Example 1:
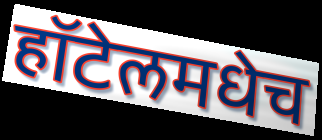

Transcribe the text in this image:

हॉटेलमधेच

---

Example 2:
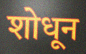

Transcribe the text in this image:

शोधून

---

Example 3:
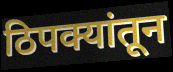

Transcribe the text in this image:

ठिपक्यांतून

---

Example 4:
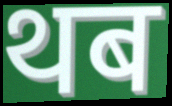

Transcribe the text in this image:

थब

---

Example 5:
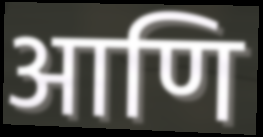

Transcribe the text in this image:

आणि